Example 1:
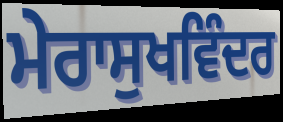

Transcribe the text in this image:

ਮੇਰਾਸੁਖਵਿੰਦਰ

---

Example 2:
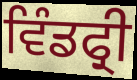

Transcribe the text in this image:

ਵਿੰਡਫ੍ਰੀ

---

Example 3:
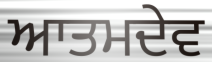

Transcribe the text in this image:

ਆਤਮਦੇਵ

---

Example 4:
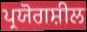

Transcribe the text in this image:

ਪ੍ਰਯੋਗਸ਼ੀਲ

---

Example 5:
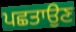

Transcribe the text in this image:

ਪਛਤਾਉਣ